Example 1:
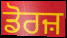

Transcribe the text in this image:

ਡੋਰਜ਼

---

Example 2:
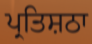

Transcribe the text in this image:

ਪ੍ਰਤਿਸ਼ਠਾ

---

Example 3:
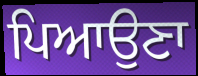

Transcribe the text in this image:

ਪਿਆਉਣਾ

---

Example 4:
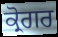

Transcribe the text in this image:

ਕ੍ਰੋਗਰ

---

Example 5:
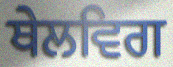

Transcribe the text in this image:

ਥੇਲਵਿਗ